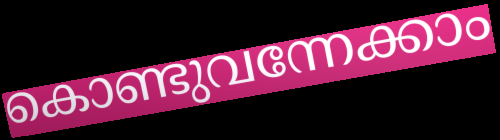
കൊണ്ടുവന്നേക്കാം